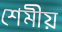
শেমীয়